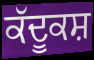
ਕੱਦੂਕਸ਼